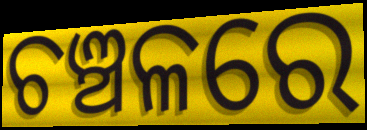
ଚଞ୍ଚଳରେ